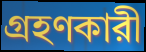
গ্রহণকারী